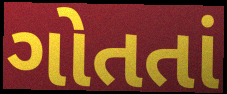
ગોતતાં